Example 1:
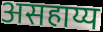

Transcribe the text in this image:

असहाय्य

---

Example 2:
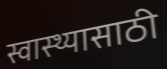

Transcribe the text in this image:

स्वास्थ्यासाठी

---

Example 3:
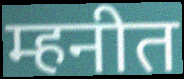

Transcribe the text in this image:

म्हनीत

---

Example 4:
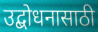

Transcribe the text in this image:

उद्बोधनासाठी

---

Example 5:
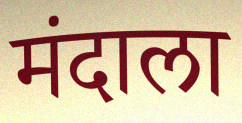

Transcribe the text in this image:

मंदाला